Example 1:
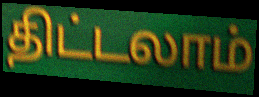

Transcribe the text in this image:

திட்டலாம்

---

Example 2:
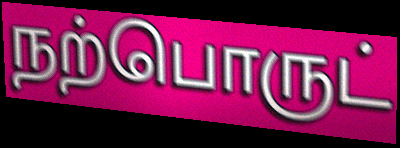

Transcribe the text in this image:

நற்பொருட்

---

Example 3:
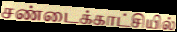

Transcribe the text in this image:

சண்டைக்காட்சியில்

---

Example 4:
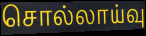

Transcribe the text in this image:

சொல்லாய்வு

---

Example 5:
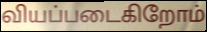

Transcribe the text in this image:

வியப்படைகிறோம்